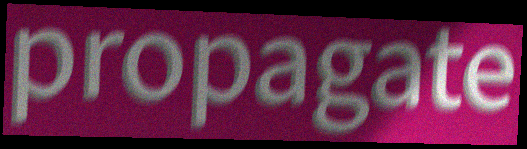
propagate